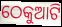
ଠେକୁଆଟି